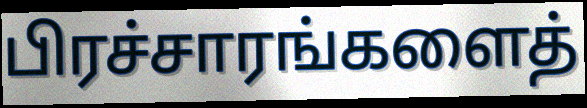
பிரச்சாரங்களைத்